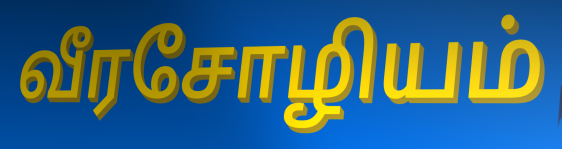
வீரசோழியம்